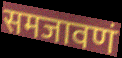
समजावणं